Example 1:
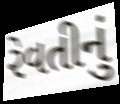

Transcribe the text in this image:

રેવતીનું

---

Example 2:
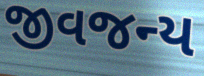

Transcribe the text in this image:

જીવજન્ય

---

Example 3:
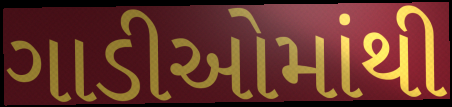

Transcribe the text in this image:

ગાડીઓમાંથી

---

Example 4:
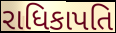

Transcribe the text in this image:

રાધિકાપતિ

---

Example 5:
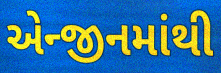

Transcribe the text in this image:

એન્જીનમાંથી